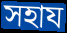
সহায